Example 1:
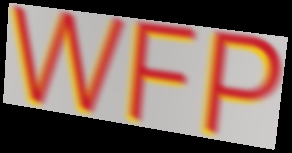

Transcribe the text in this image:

WFP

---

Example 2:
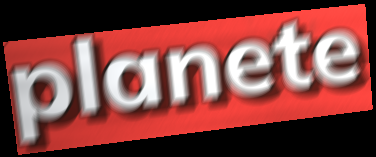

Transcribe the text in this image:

planete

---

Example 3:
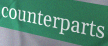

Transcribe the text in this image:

counterparts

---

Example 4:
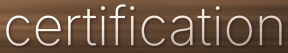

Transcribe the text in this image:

certification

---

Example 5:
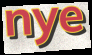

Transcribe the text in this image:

nye